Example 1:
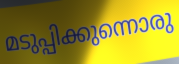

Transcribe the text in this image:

മടുപ്പിക്കുന്നൊരു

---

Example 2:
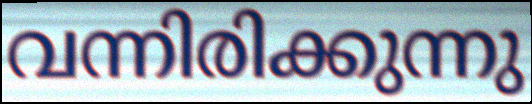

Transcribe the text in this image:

വന്നിരിക്കുന്നു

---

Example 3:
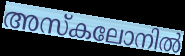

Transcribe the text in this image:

അസ്കലോനിൽ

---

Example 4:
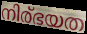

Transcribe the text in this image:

നിര്ഭയത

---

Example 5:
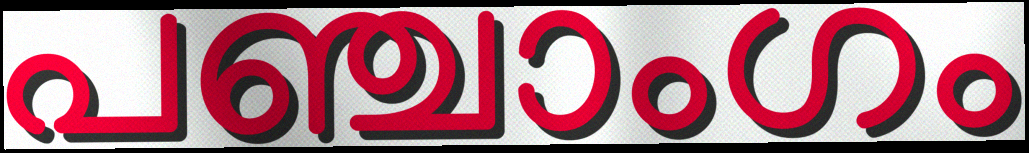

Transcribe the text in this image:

പഞ്ചാംഗം